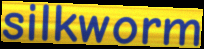
silkworm